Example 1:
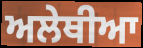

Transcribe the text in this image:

ਅਲੇਥੀਆ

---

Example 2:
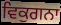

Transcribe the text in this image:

ਵਿਕੁਗਨਾ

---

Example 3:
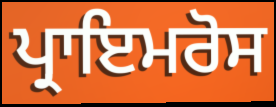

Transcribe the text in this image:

ਪ੍ਰਾਇਮਰੋਸ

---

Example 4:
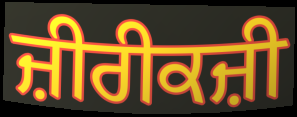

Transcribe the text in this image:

ਜ਼ੀਰੀਕਜ਼ੀ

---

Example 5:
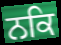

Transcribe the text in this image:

ਨਕਿ